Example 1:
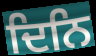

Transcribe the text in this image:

ਦਿਨਿ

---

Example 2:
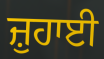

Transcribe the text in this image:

ਜ਼ੁਹਾਈ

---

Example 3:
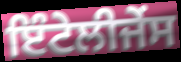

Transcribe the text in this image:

ਇੰਟੇਲੀਜੇੰਸ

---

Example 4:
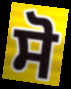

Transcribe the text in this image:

ਸੋ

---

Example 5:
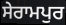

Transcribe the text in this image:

ਸੇਰਾਮਪੁਰ